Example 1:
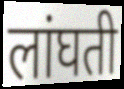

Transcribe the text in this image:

लांघती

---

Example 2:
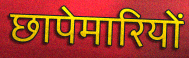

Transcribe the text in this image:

छापेमारियों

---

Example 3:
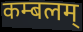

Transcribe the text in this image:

कम्बलम्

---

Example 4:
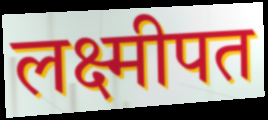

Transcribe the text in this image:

लक्ष्मीपत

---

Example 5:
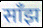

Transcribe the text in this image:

साँझ